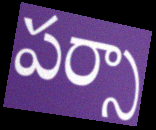
పర్సా